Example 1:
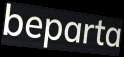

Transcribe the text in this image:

beparta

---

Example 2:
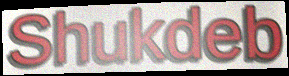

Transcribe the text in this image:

Shukdeb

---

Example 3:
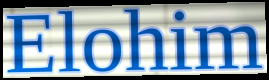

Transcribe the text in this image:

Elohim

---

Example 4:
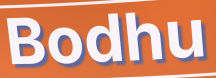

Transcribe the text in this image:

Bodhu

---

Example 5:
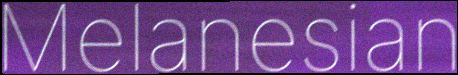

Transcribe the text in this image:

Melanesian